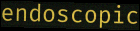
endoscopic